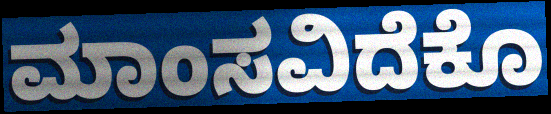
ಮಾಂಸವಿದೆಕೊ